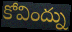
కోవింద్ను